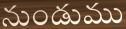
నుండుము